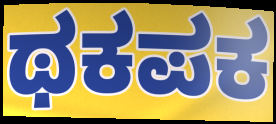
ಥಕಪಕ